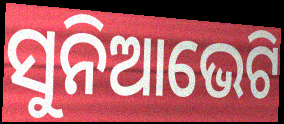
ସୁନିଆଭେଟି